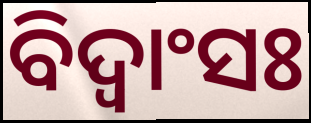
ବିଦ୍ଵାଂସଃ